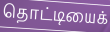
தொட்டியைக்